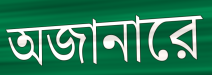
অজানারে